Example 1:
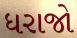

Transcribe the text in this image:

ધરાજો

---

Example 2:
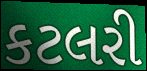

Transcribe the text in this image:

કટલરી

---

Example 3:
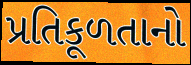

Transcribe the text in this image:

પ્રતિકૂળતાનો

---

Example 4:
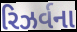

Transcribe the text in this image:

રિઝર્વના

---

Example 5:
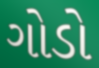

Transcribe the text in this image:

ગોડો